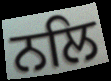
ਨਲਿ